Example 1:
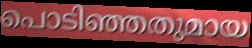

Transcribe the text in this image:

പൊടിഞ്ഞതുമായ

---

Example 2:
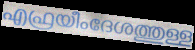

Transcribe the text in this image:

എഫ്രയീംദേശത്തുള്ള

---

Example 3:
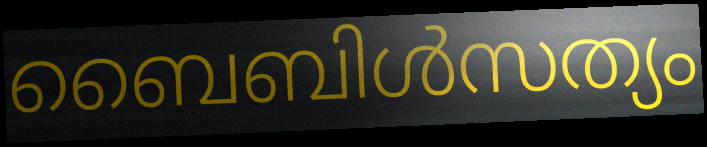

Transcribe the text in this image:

ബൈബിൾസത്യം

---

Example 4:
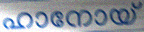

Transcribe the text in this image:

ഹാനോയ്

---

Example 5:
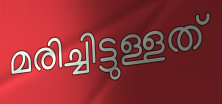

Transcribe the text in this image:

മരിച്ചിട്ടുള്ളത്